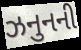
ઝનુનની